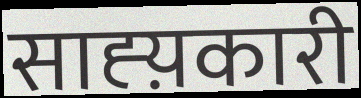
साह्य़कारी